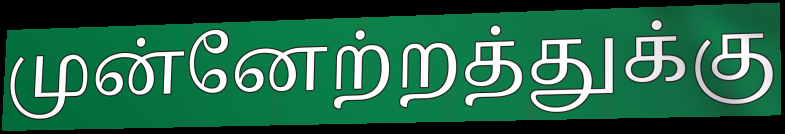
முன்னேற்றத்துக்கு